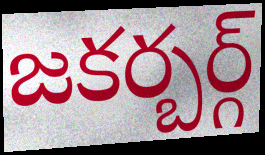
జకర్బర్గ్